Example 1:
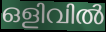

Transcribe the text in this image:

ഒളിവിൽ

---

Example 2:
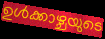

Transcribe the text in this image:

ഉൾക്കാഴ്ചയുടെ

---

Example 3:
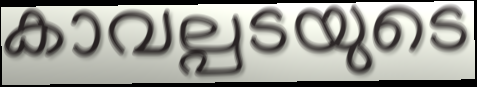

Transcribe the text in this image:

കാവല്പടയുടെ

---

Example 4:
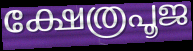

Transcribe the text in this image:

ക്ഷേത്രപൂജ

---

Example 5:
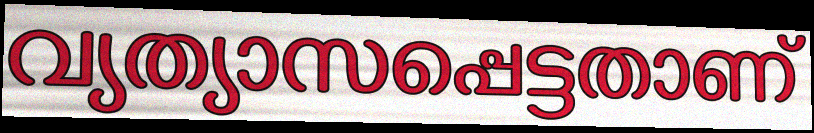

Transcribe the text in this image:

വ്യത്യാസപ്പെട്ടതാണ്